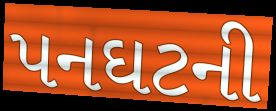
પનઘટની